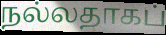
நல்லதாகப்